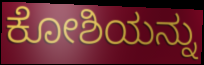
ಕೋಶಿಯನ್ನು